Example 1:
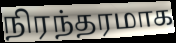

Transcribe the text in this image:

நிரந்தரமாக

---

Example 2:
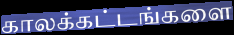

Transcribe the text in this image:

காலக்கட்டங்களை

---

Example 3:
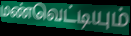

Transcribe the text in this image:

மண்வெட்டியும்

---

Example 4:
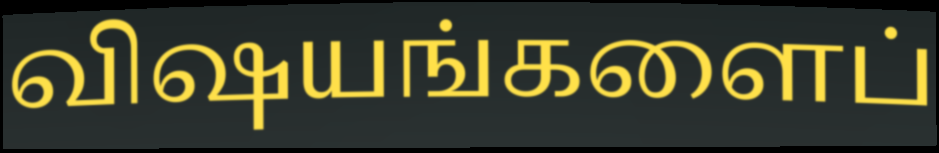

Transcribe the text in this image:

விஷயங்களைப்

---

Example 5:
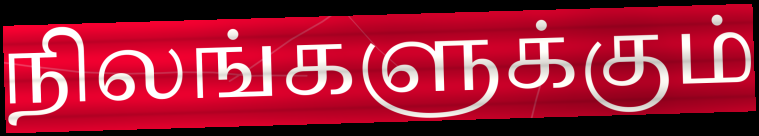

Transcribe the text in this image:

நிலங்களுக்கும்